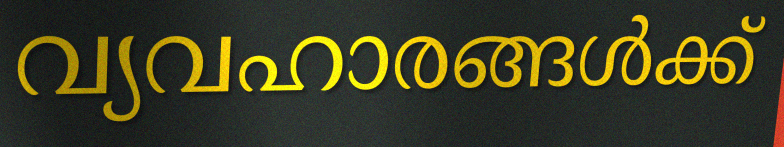
വ്യവഹാരങ്ങൾക്ക്